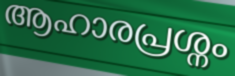
ആഹാരപ്രശ്നം